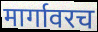
मार्गावरच